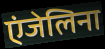
एंजेलिना